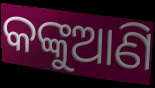
କଙ୍କୁଆଣି